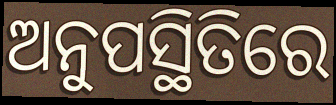
ଅନୁପସ୍ଥିତିରେ